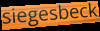
siegesbeck